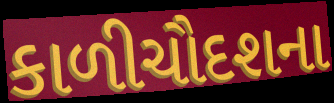
કાળીચૌદશના